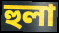
হুলা